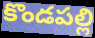
కొండపల్లి